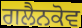
ਗਲੈਨਕੋਵ